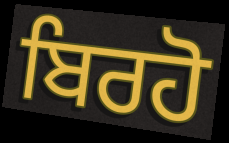
ਬਿਰਹੋ